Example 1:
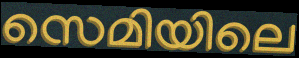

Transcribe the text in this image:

സെമിയിലെ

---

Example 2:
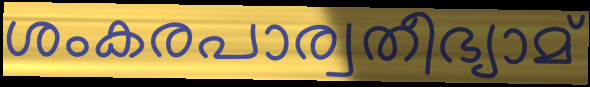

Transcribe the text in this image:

ശംകരപാര്വതീഭ്യാമ്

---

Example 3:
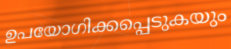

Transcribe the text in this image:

ഉപയോഗിക്കപ്പെടുകയും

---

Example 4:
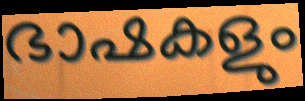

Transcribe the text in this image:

ഭാഷകളും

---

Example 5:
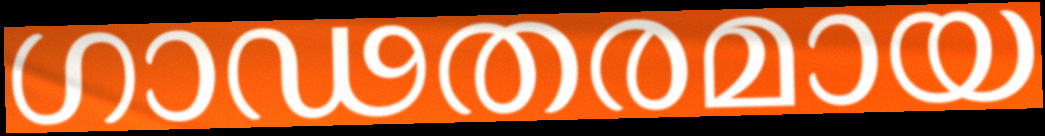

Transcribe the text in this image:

ഗാഢതരമായ